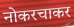
नोकरचाकर